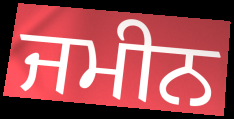
ਜਮੀਨ